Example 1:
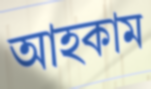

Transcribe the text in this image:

আহকাম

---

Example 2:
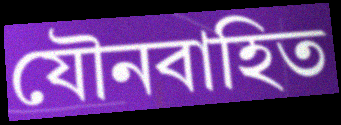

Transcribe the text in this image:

যৌনবাহিত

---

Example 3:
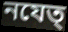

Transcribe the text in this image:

নযেত্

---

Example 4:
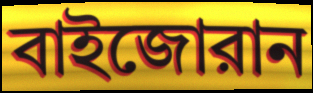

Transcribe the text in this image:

বাইজোরান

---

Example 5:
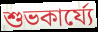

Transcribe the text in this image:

শুভকার্য্যে